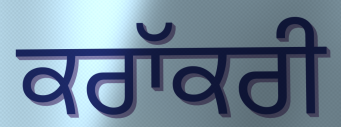
ਕਰਾੱਕਰੀ